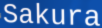
Sakura